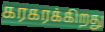
கரகரக்கிறது